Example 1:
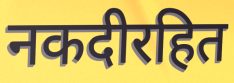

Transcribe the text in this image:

नकदीरहित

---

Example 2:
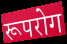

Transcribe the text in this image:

रूपरोग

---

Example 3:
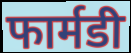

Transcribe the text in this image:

फार्मडी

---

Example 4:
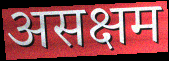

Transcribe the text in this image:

असक्षम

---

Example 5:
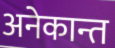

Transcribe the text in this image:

अनेकान्त